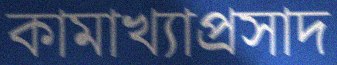
কামাখ্যাপ্রসাদ